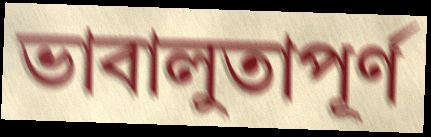
ভাবালুতাপূর্ণ